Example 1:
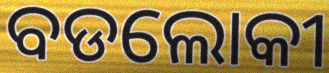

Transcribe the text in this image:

ବଡଲୋକୀ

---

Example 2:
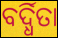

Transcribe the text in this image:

ବର୍ଦ୍ଧିତା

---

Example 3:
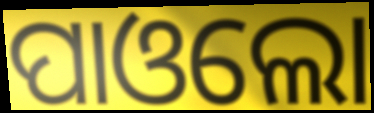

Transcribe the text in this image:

ପାଓଲୋ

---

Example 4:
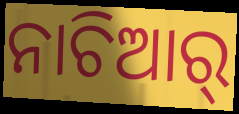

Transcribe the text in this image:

ନାଚିଆର୍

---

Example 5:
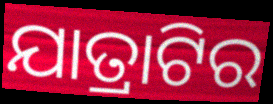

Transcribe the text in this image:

ଯାତ୍ରାଟିର